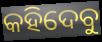
କହିଦେବୁ